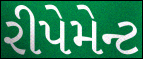
રીપેમેન્ટ